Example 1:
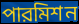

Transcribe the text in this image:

পারমিশন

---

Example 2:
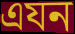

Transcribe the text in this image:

এযন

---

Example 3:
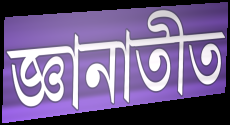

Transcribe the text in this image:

জ্ঞানাতীত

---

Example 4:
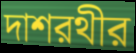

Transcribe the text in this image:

দাশরথীর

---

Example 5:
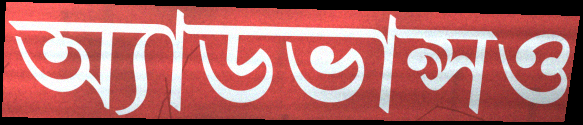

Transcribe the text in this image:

অ্যাডভান্সও